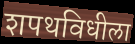
शपथविधीला